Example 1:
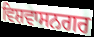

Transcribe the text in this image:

ਵਿਸ਼ਵਾਸਨਗਰ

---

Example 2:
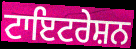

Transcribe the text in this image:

ਟਾਇਟਰੇਸ਼ਨ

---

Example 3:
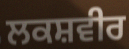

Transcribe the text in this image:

ਲਕਸ਼ਵੀਰ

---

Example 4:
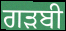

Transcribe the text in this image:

ਗੜਬੀ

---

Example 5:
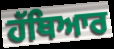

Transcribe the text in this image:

ਹੱਥਿਆਰ